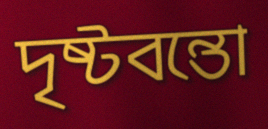
দৃষ্টবন্তো